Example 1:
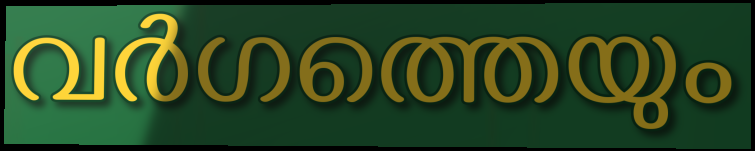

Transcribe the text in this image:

വർഗത്തെയും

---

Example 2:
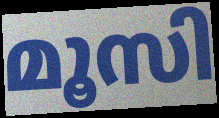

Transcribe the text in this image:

മൂസി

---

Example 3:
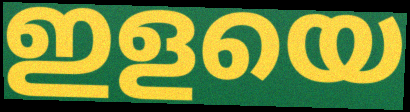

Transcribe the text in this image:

ഇളയെ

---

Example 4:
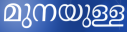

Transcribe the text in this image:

മുനയുള്ള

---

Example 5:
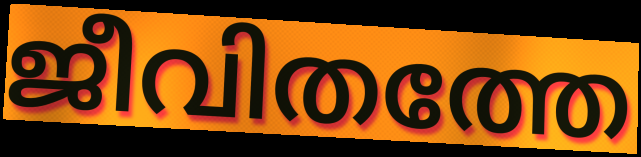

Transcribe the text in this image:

ജീവിതത്തേ